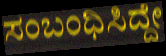
ಸಂಬಂಧಿಸಿದ್ದೇ